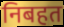
निबहत